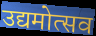
उद्यमोत्सव